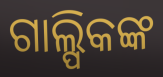
ଗାଲ୍ପିକଙ୍କ